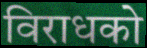
विराधको